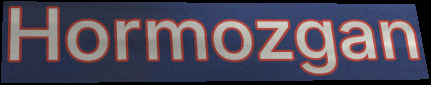
Hormozgan